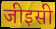
जीइसी